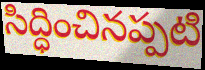
సిద్ధించినప్పటి